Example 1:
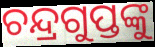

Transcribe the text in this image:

ଚନ୍ଦ୍ରଗୁପ୍ତଙ୍କୁ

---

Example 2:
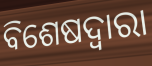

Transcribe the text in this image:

ବିଶେଷଦ୍ଵାରା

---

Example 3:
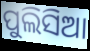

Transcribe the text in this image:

ପୁଲିସିଆ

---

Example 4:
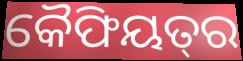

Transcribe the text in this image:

କୈଫିୟତ୍‌ର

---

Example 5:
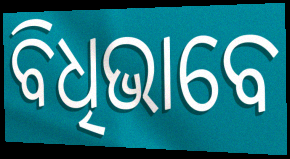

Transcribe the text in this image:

ବିଧିଭାବେ